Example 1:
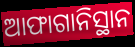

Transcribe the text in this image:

ଆଫାଗାନିସ୍ଥାନ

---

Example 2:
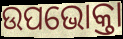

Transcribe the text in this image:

ଉପଭୋକ୍ତା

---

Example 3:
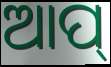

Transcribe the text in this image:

ଆପ୍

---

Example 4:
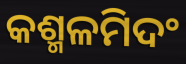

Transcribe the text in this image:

କଶ୍ମଳମିଦଂ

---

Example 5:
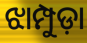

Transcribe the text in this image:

ଝାମ୍ପୁଡ଼ା